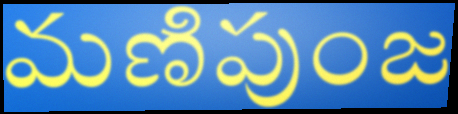
మణిపుంజ